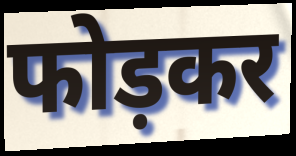
फोड़कर